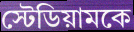
স্টেডিয়ামকে